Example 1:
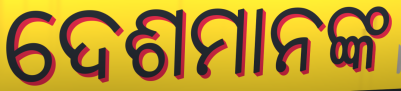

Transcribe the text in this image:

ଦେଶମାନଙ୍କ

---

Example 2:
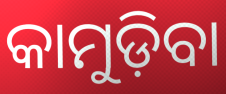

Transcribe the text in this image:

କାମୁଡ଼ିବା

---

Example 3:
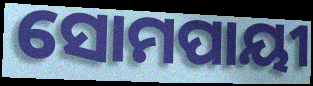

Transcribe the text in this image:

ସୋମପାୟୀ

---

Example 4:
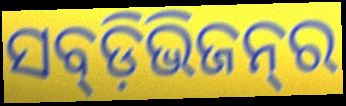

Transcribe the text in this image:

ସବ୍‍ଡ଼ିଭିଜନ୍‍ର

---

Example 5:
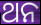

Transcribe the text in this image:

ଥନ